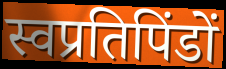
स्वप्रतिपिंडों